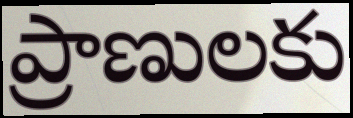
ప్రాణులకు